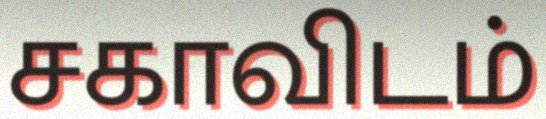
சகாவிடம்